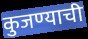
कुजण्याची